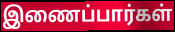
இணைப்பார்கள்